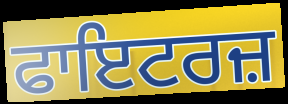
ਫਾਇਟਰਜ਼